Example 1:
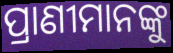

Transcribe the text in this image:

ପ୍ରାଣୀମାନଙ୍କୁ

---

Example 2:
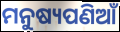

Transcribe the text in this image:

ମନୁଷ୍ୟପଣିଆଁ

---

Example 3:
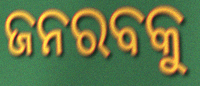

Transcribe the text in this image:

ଜନରବକୁ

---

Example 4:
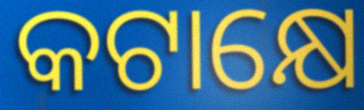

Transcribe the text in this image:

କଟାକ୍ଷେ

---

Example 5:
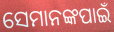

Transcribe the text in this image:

ସେମାନଙ୍କପାଇଁ